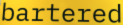
bartered